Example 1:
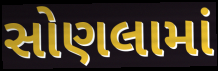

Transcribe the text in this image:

સોણલામાં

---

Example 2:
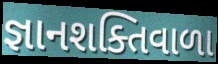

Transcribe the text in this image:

જ્ઞાનશક્તિવાળા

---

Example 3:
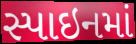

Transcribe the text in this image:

સ્પાઇનમાં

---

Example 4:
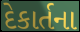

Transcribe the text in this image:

દેકાર્તના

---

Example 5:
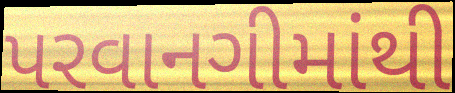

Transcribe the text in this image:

પરવાનગીમાંથી